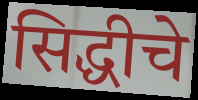
सिद्धीचे